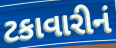
ટકાવારીનં